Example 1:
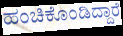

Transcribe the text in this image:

ಹಂಚಿಕೊಂಡಿದ್ದಾರೆ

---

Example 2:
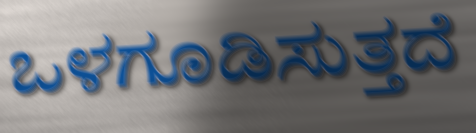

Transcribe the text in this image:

ಒಳಗೂಡಿಸುತ್ತದೆ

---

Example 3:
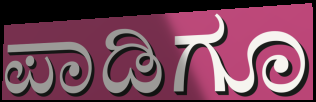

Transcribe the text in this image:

ಪಾಡಿಗೂ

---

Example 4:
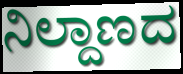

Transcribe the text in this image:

ನಿಲ್ದಾಣದ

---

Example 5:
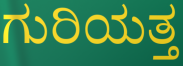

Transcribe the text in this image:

ಗುರಿಯತ್ತ